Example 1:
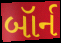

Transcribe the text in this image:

બૉર્ન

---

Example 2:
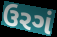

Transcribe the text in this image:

ઉરગં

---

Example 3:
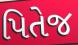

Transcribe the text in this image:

પિતેજ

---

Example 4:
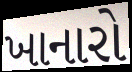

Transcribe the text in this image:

ખાનારો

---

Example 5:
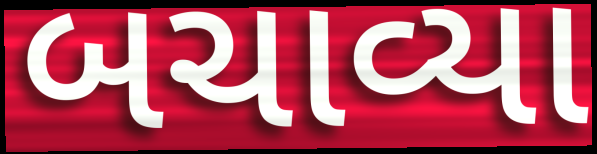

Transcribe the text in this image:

બચાવ્યા